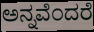
ಅನ್ನವೆಂದರೆ